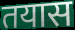
तयास